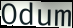
Odum